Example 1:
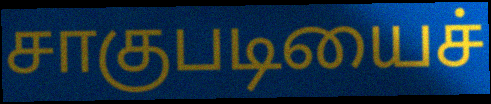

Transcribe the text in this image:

சாகுபடியைச்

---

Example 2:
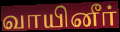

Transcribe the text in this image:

வாயினீர்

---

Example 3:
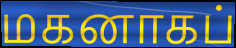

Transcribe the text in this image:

மகனாகப்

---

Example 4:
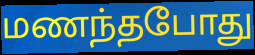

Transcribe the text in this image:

மணந்தபோது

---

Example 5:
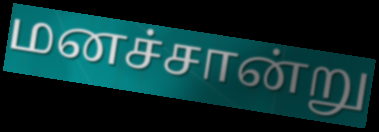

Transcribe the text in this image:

மனச்சான்று